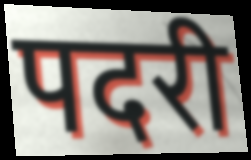
पदरी